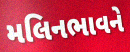
મલિનભાવને